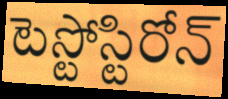
టెస్టోస్టిరోన్